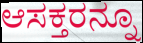
ಆಸಕ್ತರನ್ನೂ